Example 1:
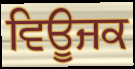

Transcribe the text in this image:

ਵਿਊਜਕ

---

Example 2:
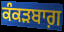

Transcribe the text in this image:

ਕੰਕੜਬਾਗ਼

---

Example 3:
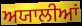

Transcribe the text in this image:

ਅਯਾਲੀਆਂ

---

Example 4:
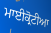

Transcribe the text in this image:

ਮਾਈਕ੍ਰੋਟੀਆ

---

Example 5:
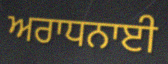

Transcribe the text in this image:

ਅਰਾਧਨਾਈ